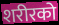
शरीरको